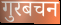
गुरबचन